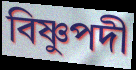
বিষ্ণুপদী